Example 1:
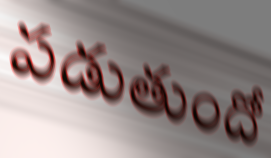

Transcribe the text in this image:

పడుతుందో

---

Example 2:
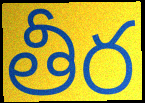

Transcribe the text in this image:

తీర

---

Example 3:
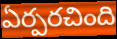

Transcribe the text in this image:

ఏర్పరచింది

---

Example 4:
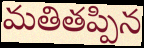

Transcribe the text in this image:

మతితప్పిన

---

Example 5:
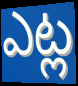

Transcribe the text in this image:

ఎట్ల